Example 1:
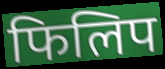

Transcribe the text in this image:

फिलिप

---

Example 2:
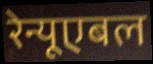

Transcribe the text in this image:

रेन्यूएबल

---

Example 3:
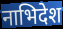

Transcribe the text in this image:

नाभिदेश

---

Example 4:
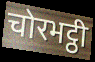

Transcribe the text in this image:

चोरभट्ठी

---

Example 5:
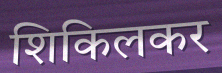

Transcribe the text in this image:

शिकिलकर